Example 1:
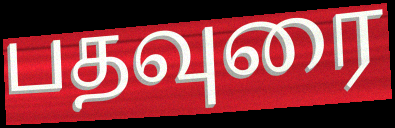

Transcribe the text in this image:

பதவுரை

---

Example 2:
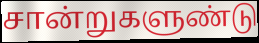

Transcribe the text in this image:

சான்றுகளுண்டு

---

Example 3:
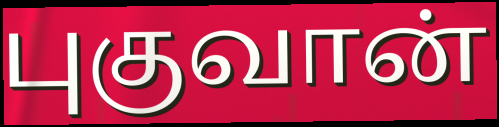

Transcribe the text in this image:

புகுவான்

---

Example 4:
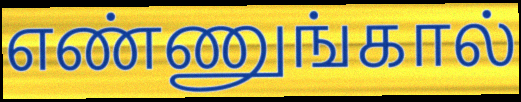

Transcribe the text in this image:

எண்ணுங்கால்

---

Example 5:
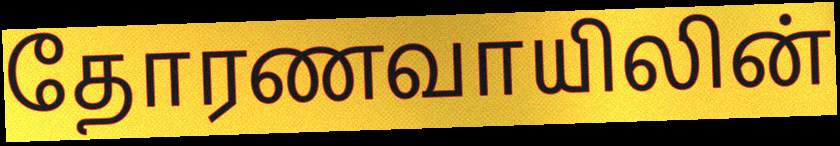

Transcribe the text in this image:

தோரணவாயிலின்